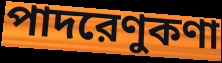
পাদরেণুকণা